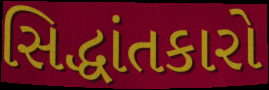
સિદ્ધાંતકારો